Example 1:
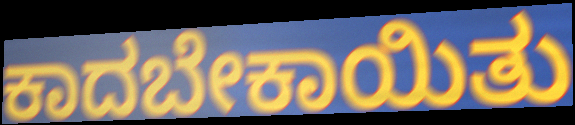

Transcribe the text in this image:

ಕಾದಬೇಕಾಯಿತು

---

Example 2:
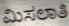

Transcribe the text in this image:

ಮಿಸಲಾತಿ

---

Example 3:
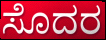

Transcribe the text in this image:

ಸೊದರ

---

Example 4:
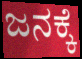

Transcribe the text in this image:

ಜನಕ್ಕೆ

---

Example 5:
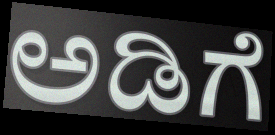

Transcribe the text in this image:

ಅಡಿಗೆ